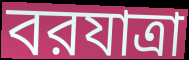
বরযাত্রা